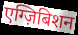
एग्ज़िबिशन